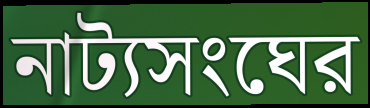
নাট্যসংঘের